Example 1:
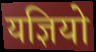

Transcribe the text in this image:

यज्ञियो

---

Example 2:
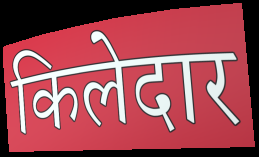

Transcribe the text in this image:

किलेदार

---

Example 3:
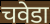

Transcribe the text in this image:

चवेडा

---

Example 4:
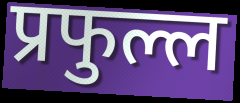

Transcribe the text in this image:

प्रफुल्ल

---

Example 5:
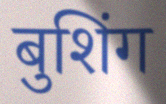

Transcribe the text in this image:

बुशिंग